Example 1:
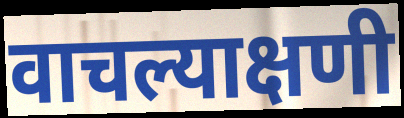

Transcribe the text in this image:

वाचल्याक्षणी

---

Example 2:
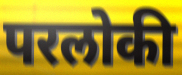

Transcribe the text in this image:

परलोकी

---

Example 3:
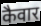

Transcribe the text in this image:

कैवार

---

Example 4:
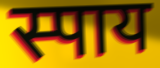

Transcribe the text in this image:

स्पाय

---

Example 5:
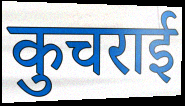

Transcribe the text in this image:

कुचराई